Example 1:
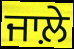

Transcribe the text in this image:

ਜਾਲ਼ੇ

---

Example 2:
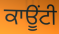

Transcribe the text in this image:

ਕਾਊਂਟੀ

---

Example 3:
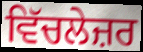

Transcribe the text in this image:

ਵਿੱਚਲੇਜ਼ਰ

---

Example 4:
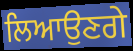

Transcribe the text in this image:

ਲਿਆਉਣਗੇ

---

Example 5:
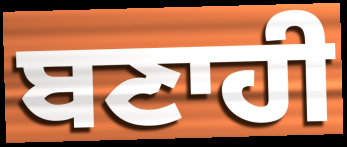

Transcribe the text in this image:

ਬਣਾਹੀ